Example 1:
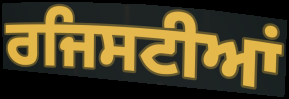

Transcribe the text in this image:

ਰਜਿਸਟੀਆਂ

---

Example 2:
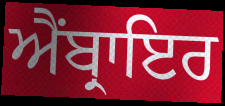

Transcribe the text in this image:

ਐਂਬ੍ਰਾਇਰ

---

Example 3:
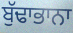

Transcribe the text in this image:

ਬੁੱਢਾਭਾਨਾ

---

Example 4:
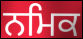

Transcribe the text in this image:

ਨਮਿਕ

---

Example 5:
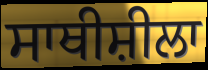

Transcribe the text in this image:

ਸਾਥੀਸ਼ੀਲਾ